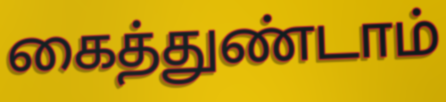
கைத்துண்டாம்